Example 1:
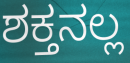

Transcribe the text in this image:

ಶಕ್ತನಲ್ಲ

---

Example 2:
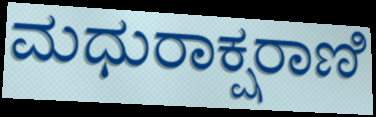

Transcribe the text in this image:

ಮಧುರಾಕ್ಷರಾಣಿ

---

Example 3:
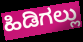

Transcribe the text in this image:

ಹಿಡಿಗಲ್ಲು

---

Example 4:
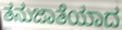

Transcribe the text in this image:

ತನುಜಾತೆಯಾದ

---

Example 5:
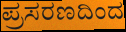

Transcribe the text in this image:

ಪ್ರಸರಣದಿಂದ